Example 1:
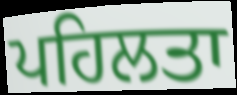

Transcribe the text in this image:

ਪਹਿਲਤਾ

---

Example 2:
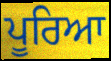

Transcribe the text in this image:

ਪੂਰਿਆ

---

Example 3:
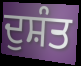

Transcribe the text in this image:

ਦੁਸ਼ੰਤ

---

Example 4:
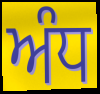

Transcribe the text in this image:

ਅੰਧ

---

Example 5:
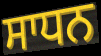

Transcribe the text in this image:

ਸਾਧਨ